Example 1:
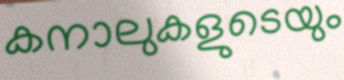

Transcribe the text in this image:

കനാലുകളുടെയും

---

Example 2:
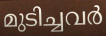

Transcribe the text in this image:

മുടിച്ചവർ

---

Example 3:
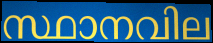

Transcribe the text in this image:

സ്ഥാനവില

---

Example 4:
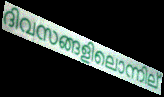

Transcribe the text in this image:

ദിവസങ്ങളിലൊന്നില്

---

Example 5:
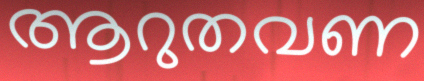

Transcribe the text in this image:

ആറുതവണ